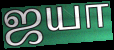
ஜயா